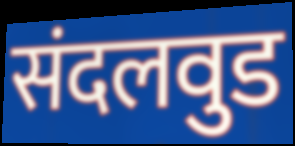
संदलवुड